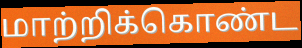
மாற்றிக்கொண்ட